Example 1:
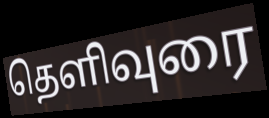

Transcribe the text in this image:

தெளிவுரை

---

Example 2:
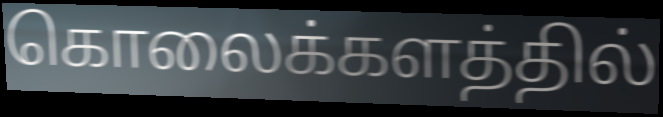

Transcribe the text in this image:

கொலைக்களத்தில்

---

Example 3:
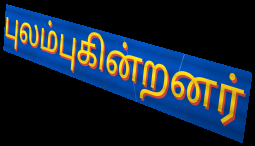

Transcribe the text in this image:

புலம்புகின்றனர்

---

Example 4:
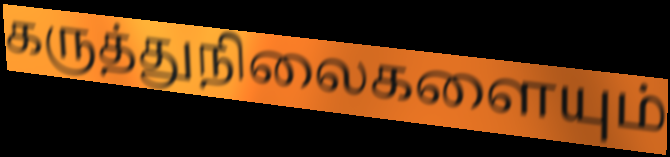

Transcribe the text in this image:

கருத்துநிலைகளையும்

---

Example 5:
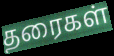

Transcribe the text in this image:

தரைகள்